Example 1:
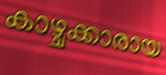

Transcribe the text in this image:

കാഴ്ചക്കാരായ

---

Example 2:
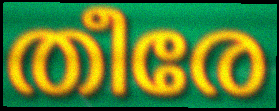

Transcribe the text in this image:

തീരേ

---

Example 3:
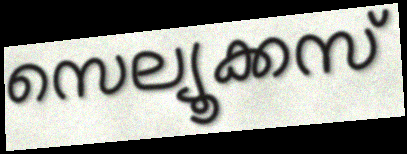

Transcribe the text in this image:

സെല്യൂക്കസ്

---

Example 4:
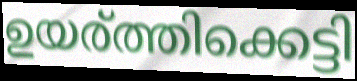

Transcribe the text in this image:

ഉയര്ത്തിക്കെട്ടി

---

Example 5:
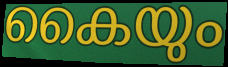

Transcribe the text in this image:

കൈയും